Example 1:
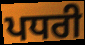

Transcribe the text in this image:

ਪਧਰੀ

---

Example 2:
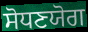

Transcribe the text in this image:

ਸੋਧਣਯੋਗ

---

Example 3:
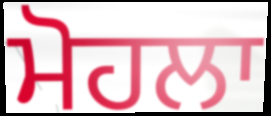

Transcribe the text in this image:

ਮੋਹਲਾ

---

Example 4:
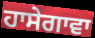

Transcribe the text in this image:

ਹਾਸੇਗਾਵਾ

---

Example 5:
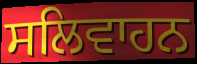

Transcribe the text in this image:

ਸਲਿਵਾਹਨ